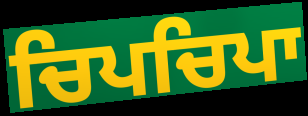
ਚਿਪਚਿਪਾ